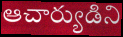
ఆచార్యుడిని